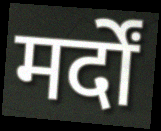
मर्दों